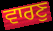
ਵਾਰਣੁ